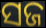
ସଜ